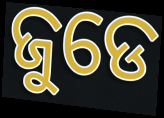
ଜୁଡେ